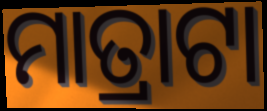
ମାତ୍ରାଟା